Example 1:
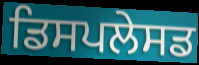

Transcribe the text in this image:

ਡਿਸਪਲੇਸਡ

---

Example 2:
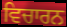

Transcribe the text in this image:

ਵਿਚਾਰਨ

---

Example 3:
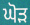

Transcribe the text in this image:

ਘੋੜ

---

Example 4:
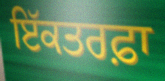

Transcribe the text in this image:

ਇੱਕਤਰਫ਼ਾ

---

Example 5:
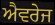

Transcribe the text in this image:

ਐਵਰੇਜ